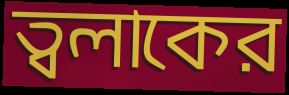
ত্বলাকের